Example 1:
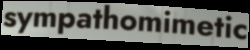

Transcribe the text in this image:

sympathomimetic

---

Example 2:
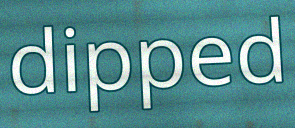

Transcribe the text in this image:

dipped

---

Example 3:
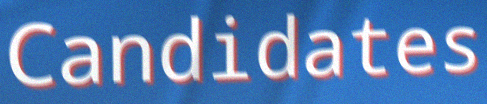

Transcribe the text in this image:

Candidates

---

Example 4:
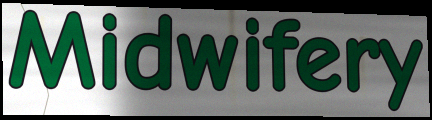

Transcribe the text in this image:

Midwifery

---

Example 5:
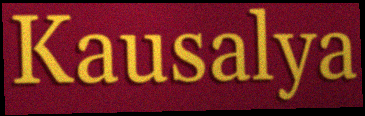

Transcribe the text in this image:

Kausalya